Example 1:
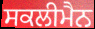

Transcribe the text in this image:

ਸਕਲੀਮੈਨ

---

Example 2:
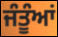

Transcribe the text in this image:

ਜੰਤੂੰਆਂ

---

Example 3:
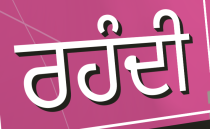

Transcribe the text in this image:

ਰਹੰਦੀ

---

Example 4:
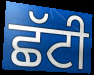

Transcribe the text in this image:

ਛੱਟੀ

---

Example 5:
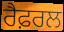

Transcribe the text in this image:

ਰੈਫ਼ਰਲ